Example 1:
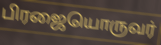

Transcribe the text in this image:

பிரஜையொருவர்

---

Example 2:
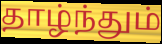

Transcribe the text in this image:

தாழ்ந்தும்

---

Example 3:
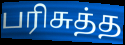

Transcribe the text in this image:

பரிசுத்த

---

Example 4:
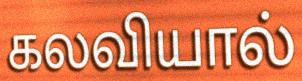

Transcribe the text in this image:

கலவியால்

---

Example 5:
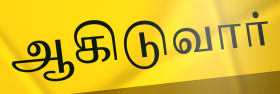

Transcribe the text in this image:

ஆகிடுவார்